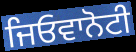
ਜਿਓਵਾਨੋਟੀ